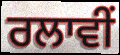
ਰਲਾਵੀਂ